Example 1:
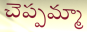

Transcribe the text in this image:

చెప్పమ్మా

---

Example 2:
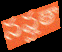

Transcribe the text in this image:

నవ్హతా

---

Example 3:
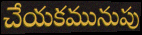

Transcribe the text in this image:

చేయకమునుపు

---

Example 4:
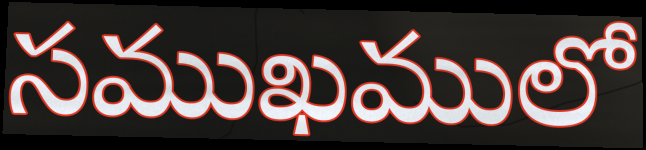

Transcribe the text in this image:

సముఖములో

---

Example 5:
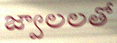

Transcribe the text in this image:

జ్వాలలతో